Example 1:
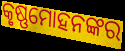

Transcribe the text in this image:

କୃଷ୍ଣମୋହନଙ୍କର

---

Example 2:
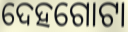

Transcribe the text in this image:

ଦେହଗୋଟା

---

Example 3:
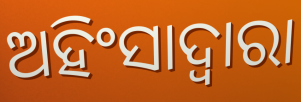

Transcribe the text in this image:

ଅହିଂସାଦ୍ୱାରା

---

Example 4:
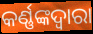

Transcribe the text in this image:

କର୍ଣ୍ଣଙ୍କଦ୍ୱାରା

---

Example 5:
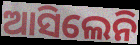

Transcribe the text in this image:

ଆସିଲେନି